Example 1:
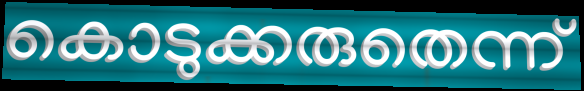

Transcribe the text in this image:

കൊടുക്കരുതെന്ന്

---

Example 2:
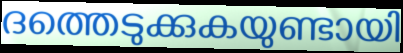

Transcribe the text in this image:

ദത്തെടുക്കുകയുണ്ടായി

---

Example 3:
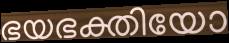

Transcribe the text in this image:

ഭയഭക്തിയോ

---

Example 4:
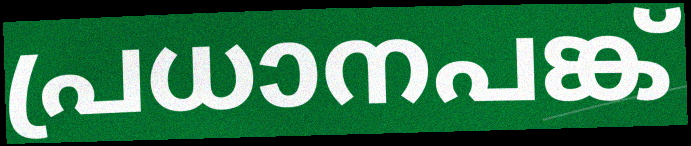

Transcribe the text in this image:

പ്രധാനപങ്ക്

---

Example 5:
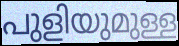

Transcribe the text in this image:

പുളിയുമുള്ള